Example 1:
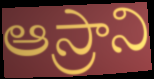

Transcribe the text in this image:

ఆస్రాని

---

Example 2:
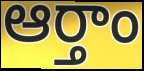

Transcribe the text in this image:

ఆర్తాం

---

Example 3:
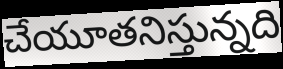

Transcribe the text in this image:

చేయూతనిస్తున్నది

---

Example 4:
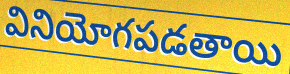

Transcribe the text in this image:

వినియోగపడతాయి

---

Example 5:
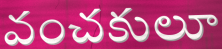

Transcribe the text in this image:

వంచకులూ